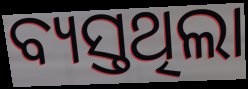
ବ୍ୟସ୍ତଥିଲା